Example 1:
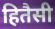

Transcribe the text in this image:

हितैसी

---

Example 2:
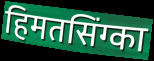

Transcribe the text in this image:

हिमतसिंग्का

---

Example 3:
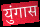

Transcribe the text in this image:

युंगास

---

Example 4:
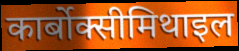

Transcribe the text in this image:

कार्बोक्सीमिथाइल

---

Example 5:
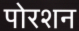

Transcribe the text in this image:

पोरशन